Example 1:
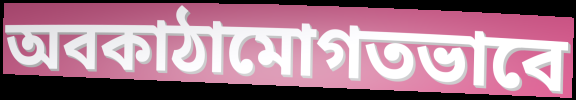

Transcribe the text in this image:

অবকাঠামোগতভাবে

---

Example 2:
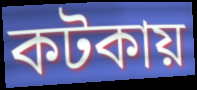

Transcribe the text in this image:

কটকায়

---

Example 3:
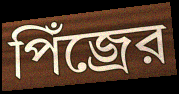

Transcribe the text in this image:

পিঁজ্রের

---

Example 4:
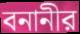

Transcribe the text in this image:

বনানীর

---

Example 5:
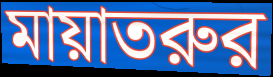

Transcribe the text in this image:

মায়াতরুর